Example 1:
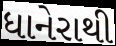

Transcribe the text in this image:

ધાનેરાથી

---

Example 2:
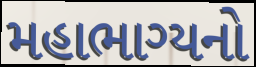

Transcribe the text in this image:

મહાભાગ્યનો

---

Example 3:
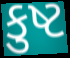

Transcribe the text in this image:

કુષ્ટ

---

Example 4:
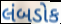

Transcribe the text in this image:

લંબડોક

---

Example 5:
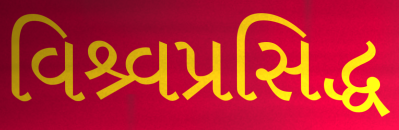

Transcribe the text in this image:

વિશ્ર્વપ્રસિદ્ધ